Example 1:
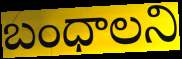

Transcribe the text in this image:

బంధాలని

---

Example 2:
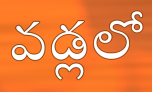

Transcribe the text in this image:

వడ్లలో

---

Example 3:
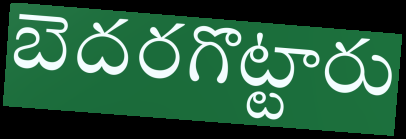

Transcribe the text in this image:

బెదరగొట్టారు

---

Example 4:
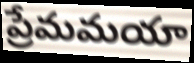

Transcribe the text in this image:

ప్రేమమయా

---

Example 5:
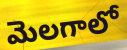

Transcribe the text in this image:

మెలగాలో